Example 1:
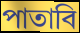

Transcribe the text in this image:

পাতাবি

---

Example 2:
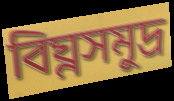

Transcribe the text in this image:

বিঘ্নসমুদ্র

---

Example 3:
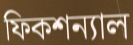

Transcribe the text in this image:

ফিকশন্যাল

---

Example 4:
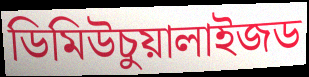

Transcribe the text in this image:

ডিমিউচুয়ালাইজড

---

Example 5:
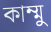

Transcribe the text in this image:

কাম্মু